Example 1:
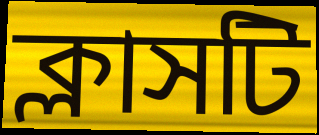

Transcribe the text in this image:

ক্লাসটি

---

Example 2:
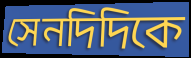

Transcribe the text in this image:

সেনদিদিকে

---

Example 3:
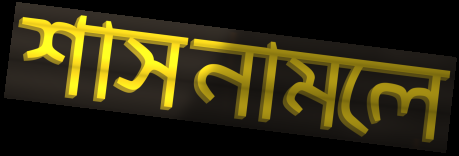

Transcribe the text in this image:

শাসনামলে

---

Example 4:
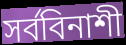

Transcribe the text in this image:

সর্ববিনাশী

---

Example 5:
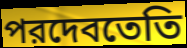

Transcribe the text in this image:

পরদেবতেতি